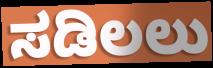
ಸಡಿಲಲು